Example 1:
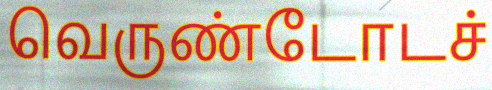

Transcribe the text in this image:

வெருண்டோடச்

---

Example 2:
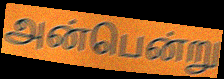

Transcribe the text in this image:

அன்பென்று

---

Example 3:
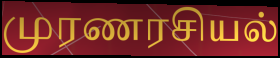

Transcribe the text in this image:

முரணரசியல்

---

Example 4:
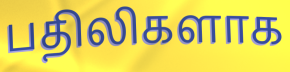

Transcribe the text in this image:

பதிலிகளாக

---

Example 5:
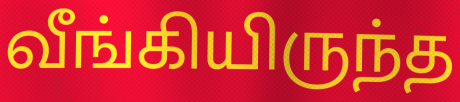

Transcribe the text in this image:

வீங்கியிருந்த